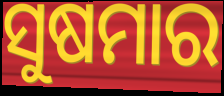
ସୁଷମାର